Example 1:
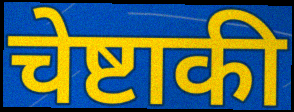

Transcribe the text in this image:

चेष्टाकी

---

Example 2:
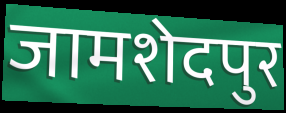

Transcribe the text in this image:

जामशेदपुर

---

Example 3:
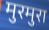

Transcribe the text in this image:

मुरमुरा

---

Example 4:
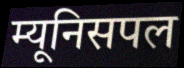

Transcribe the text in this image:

म्यूनिसपल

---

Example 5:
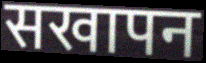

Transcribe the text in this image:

सखापन